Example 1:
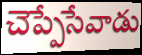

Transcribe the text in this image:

చెప్పేసేవాడు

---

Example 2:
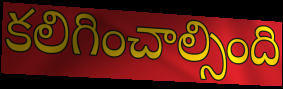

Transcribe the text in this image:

కలిగించాల్సింది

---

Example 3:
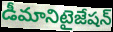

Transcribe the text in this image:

డీమానిటైజేషన్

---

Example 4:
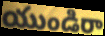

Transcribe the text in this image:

యుండిరా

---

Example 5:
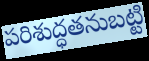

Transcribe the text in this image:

పరిశుద్ధతనుబట్టి